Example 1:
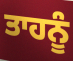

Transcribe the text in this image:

ਤਾਹਨੂੰ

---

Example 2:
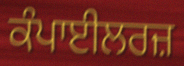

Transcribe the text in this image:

ਕੰਪਾਈਲਰਜ਼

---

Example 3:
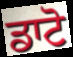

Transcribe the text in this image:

ਡਾਟੋ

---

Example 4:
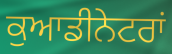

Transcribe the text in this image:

ਕੁਆਡੀਨੇਟਰਾਂ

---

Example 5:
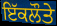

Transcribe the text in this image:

ਇੱਕਲੌਤੇ